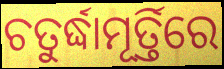
ଚତୁର୍ଦ୍ଧାମୂର୍ତ୍ତିରେ